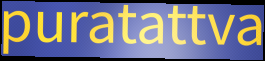
puratattva